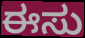
ಈಸು